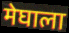
मेघाला